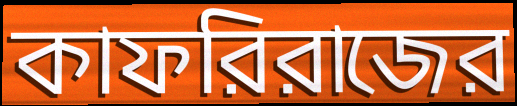
কাফরিরাজের